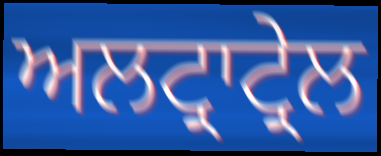
ਅਲਟ੍ਰਾਟ੍ਰੇਲ